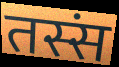
तस्सं